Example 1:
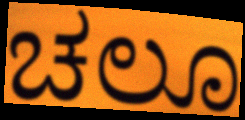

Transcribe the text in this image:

ಚಲೂ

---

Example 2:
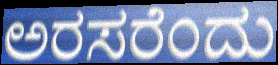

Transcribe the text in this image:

ಅರಸರೆಂದು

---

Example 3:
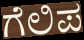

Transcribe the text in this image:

ಗೆಲಿಪ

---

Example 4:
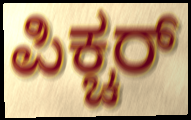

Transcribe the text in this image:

ಪಿಕ್ಚರ್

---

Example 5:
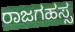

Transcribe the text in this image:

ರಾಜಗಹಸ್ಸ